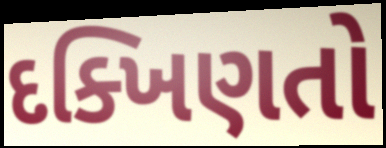
દક્ખિણતો